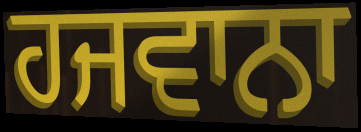
ਹਜਵਾਨਾ